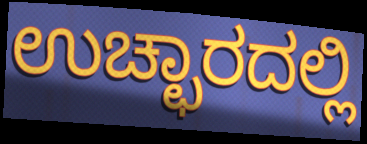
ಉಚ್ಛಾರದಲ್ಲಿ